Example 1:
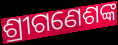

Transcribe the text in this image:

ଶ୍ରୀଗଣେଶଙ୍କ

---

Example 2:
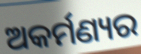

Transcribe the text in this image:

ଅକର୍ମଣ୍ୟର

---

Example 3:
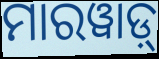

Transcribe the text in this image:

ମାରୱାଡ଼୍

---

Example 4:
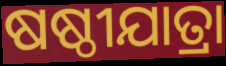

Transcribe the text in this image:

ଷଷ୍ଠୀଯାତ୍ରା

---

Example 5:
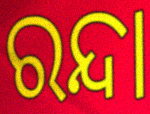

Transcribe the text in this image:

ରନ୍ଦା